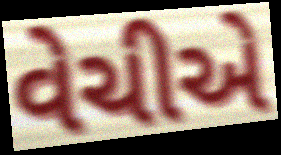
વેચીએ